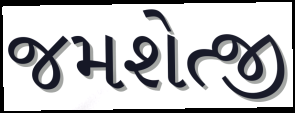
જમશેત્જી